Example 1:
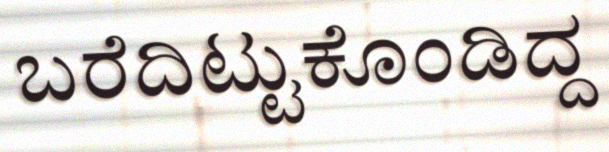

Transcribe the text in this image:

ಬರೆದಿಟ್ಟುಕೊಂಡಿದ್ದ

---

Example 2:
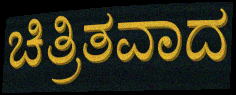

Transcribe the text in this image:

ಚಿತ್ರಿತವಾದ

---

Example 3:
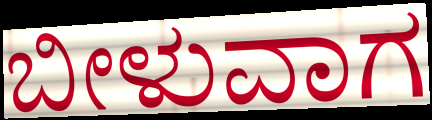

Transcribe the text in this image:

ಬೀಳುವಾಗ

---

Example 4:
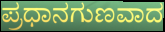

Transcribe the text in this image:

ಪ್ರಧಾನಗುಣವಾದ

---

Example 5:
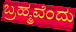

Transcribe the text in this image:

ಬ್ರಹ್ಮವೆಂದು